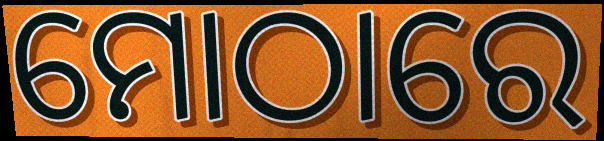
ମୋଠାରେ